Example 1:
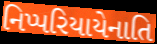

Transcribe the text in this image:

નિપ્પરિયાયેનાતિ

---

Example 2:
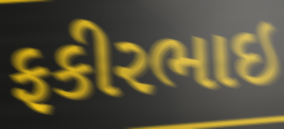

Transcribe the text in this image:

ફકીરભાઇ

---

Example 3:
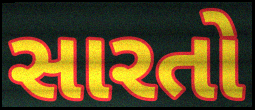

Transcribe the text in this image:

સારતો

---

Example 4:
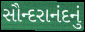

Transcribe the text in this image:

સૌન્દરાનંદનું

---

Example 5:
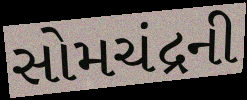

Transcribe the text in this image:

સોમચંદ્રની